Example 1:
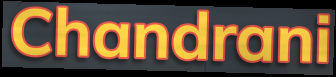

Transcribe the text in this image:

Chandrani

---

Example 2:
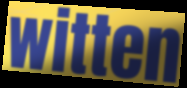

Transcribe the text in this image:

witten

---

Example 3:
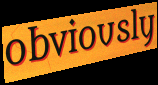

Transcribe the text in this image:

obviously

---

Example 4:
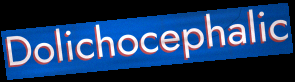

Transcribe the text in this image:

Dolichocephalic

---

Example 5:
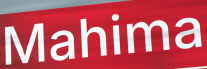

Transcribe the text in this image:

Mahima